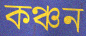
কঞ্চন